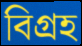
বিগ্রহ